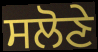
ਸਲੋਣੇ